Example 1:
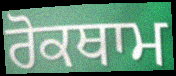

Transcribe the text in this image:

ਰੋਕਥਾਮ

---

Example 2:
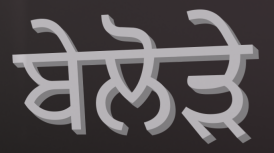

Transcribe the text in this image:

ਬੇਲੋੜੇ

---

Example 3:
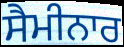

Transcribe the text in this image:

ਸੈਮੀਨਾਰ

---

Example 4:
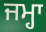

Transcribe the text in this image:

ਜਮ੍ਹਾ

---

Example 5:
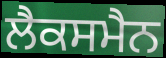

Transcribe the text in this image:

ਲੈਕਸਮੈਨ